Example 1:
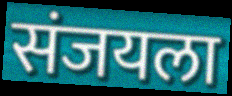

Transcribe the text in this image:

संजयला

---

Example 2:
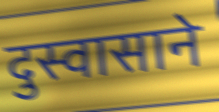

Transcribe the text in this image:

दुस्वासाने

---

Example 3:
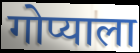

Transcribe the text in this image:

गोप्याला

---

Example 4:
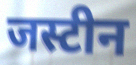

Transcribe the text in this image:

जस्टीन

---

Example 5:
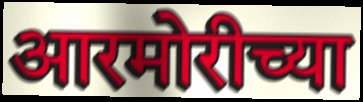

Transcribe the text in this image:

आरमोरीच्या